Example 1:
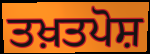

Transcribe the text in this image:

ਤਖ਼ਤਪੋਸ਼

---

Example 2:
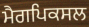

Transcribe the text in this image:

ਮੈਗਪਿਕਸਲ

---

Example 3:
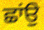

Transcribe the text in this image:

ਛਾਂਉ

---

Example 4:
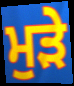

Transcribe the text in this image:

ਮੁੜੇ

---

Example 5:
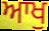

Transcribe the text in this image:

ਆਖੁ